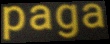
paga